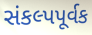
સંકલ્પપૂર્વક